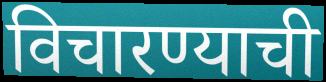
विचारण्याची